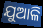
ଯୁଆଳି